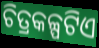
ଚିତ୍ରକଳ୍ପଟିଏ